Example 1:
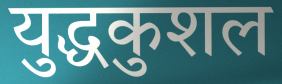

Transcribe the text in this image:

युद्धकुशल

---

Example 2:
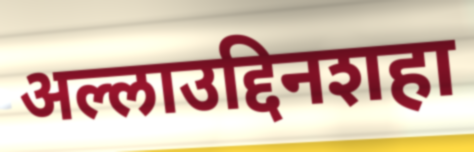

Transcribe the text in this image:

अल्लाउद्दिनशहा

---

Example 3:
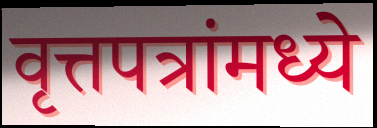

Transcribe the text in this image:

वृत्तपत्रांमध्ये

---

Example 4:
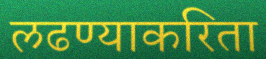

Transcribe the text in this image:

लढण्याकरिता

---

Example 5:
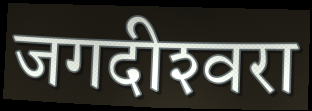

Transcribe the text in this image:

जगदीश्वरा